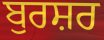
ਬੁਰਸ਼ਰ